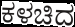
ಕಳಚಿದ